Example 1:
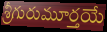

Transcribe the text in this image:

శ్రీగురుమూర్తయే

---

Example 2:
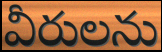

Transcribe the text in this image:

వీరులను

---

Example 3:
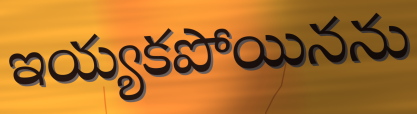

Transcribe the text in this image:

ఇయ్యకపోయినను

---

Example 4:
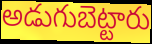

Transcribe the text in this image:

అడుగుబెట్టారు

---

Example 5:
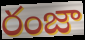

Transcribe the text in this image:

రంజా